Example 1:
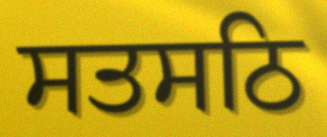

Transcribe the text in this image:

ਸਤਸਠਿ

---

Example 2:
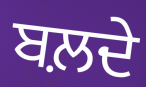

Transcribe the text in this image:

ਬਲ਼ਦੇ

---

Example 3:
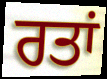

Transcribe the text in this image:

ਰਤਾਂ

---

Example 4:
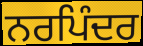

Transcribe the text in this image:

ਨਰਪਿੰਦਰ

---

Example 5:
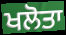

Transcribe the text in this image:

ਖਲੋਤਾ